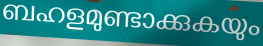
ബഹളമുണ്ടാക്കുകയും